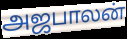
அஜபாலன்